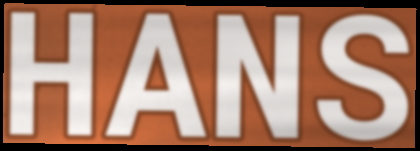
HANS